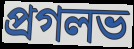
প্রগলভ